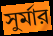
সুর্মার